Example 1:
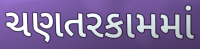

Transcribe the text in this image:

ચણતરકામમાં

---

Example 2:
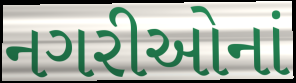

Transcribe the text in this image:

નગરીઓનાં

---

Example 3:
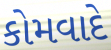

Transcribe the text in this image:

કોમવાદે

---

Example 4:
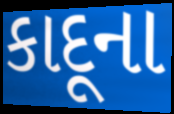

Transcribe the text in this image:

કાદૂના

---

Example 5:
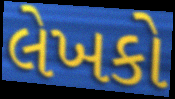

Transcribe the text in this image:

લેખકો